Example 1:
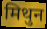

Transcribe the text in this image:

मिथुन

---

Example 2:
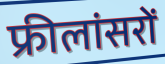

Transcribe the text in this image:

फ्रीलांसरों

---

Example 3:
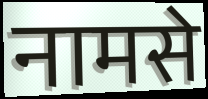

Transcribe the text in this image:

नामसे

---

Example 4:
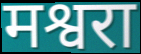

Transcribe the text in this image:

मश्वरा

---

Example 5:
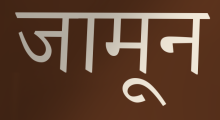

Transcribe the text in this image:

जामून